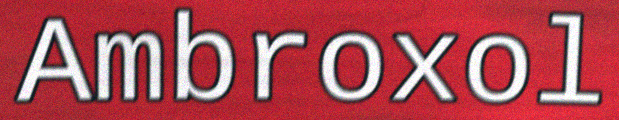
Ambroxol